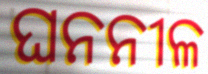
ଘନନୀଳ